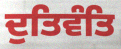
ਦੁਤਿਵੰਤਿ